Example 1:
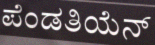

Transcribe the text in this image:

ಪೆಂಡತಿಯೆನ್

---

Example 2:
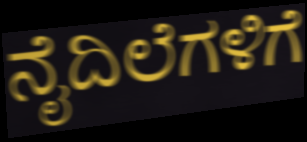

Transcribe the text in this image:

ನೈದಿಲೆಗಳಿಗೆ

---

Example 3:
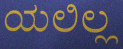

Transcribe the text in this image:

ಯಲಿಲ್ಲ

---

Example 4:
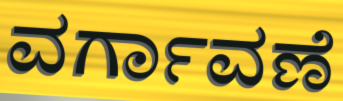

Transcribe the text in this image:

ವರ್ಗಾವಣೆ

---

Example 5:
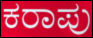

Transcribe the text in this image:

ಕರಾಪು